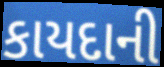
કાયદાની